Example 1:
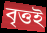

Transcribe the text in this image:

বৃত্তই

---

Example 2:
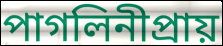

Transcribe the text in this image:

পাগলিনীপ্রায়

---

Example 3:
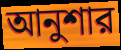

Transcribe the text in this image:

আনুশার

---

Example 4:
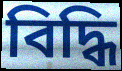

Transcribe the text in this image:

বিদ্ধি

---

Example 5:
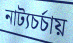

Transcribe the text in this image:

নাট্যচর্চায়